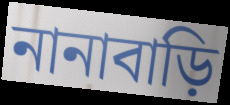
নানাবাড়ি